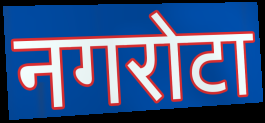
नगरोटा